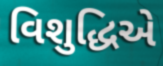
વિશુદ્ધિએ